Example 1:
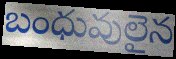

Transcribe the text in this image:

బంధువులైన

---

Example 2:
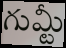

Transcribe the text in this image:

గుమ్టీ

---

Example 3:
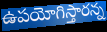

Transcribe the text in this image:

ఉపయోగిస్తారన్న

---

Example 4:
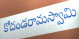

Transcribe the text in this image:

కోదండరామస్వామి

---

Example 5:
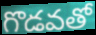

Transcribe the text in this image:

గొడవతో